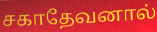
சகாதேவனால்